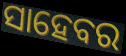
ସାହେବର